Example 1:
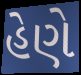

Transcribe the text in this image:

હેણે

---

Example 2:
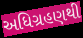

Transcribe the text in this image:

અધિગ્રહણથી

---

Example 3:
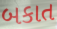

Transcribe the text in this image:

બકાત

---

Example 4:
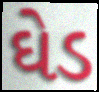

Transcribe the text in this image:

ઘેડ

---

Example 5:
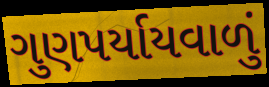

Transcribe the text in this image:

ગુણપર્યાયવાળું